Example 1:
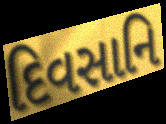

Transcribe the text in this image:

દિવસાનિ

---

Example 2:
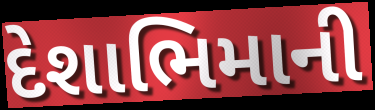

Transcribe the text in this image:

દેશાભિમાની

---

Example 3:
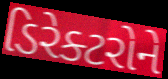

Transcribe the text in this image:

ડિરેક્ટરોને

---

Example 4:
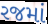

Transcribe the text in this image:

રજમાં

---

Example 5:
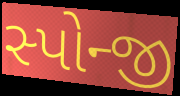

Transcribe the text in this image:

સ્પોન્જી